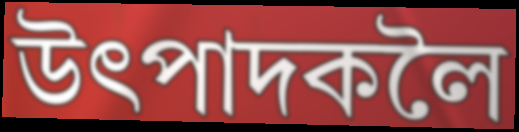
উৎপাদকলৈ